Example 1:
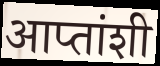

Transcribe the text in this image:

आप्तांशी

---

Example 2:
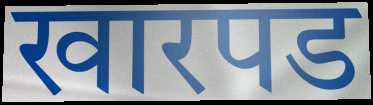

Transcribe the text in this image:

खारपड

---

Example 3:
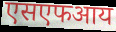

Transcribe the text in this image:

एसएफआय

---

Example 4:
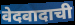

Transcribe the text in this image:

वेदवादाची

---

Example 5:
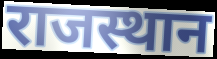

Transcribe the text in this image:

राजस्थान